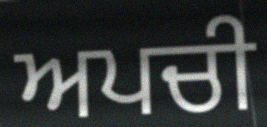
ਅਪਚੀ